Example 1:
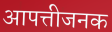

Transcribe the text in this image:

आपत्तीजनक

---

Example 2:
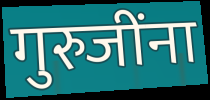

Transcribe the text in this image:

गुरुजींना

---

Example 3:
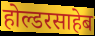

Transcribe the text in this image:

होल्डरसाहेब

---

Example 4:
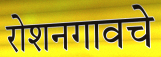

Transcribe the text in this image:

रोशनगावचे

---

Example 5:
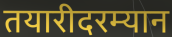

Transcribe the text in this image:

तयारीदरम्यान